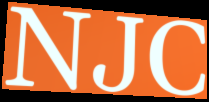
NJC